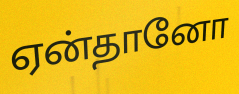
ஏன்தானோ